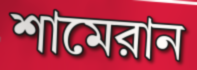
শামেরান